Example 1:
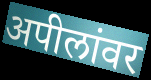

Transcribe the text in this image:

अपीलांवर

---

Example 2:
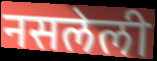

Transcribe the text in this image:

नसलेली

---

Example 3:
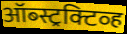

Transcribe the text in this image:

ऑब्स्ट्रक्टिव्ह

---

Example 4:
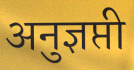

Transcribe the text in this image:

अनुज्ञप्ती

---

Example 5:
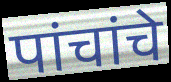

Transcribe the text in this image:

पांचांचे